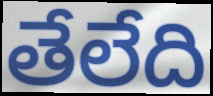
తేలేది